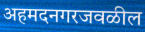
अहमदनगरजवळील